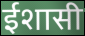
ईशासी